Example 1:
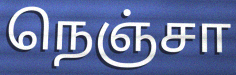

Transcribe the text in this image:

நெஞ்சா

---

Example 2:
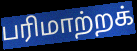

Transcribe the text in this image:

பரிமாற்றக்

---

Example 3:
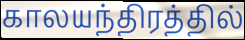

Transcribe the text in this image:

காலயந்திரத்தில்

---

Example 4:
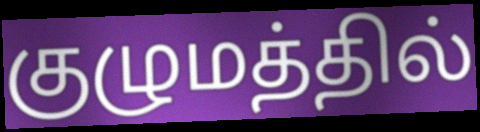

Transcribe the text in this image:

குழுமத்தில்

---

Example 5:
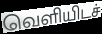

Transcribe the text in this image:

வெளியிடச்